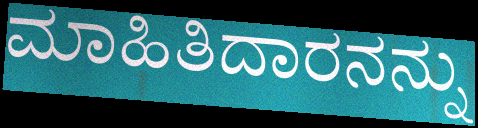
ಮಾಹಿತಿದಾರನನ್ನು